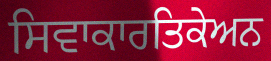
ਸਿਵਾਕਾਰਤਿਕੇਅਨ